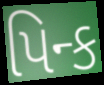
પિન્ક